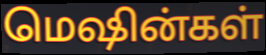
மெஷின்கள்